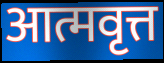
आत्मवृत्त